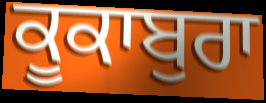
ਕੂਕਾਬੁਰਾ